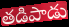
తడిపాడు